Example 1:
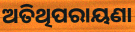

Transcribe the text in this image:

ଅତିଥିପରାୟଣା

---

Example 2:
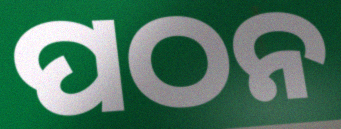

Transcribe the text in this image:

ପଠନ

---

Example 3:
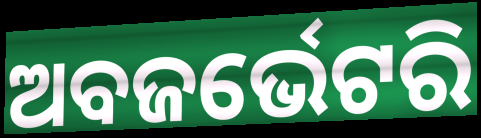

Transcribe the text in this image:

ଅବଜର୍ଭେଟରି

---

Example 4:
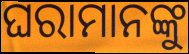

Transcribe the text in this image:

ଘରାମାନଙ୍କୁ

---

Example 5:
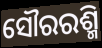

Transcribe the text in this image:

ସୌରରଶ୍ମି